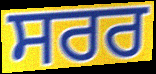
ਸਰਰ